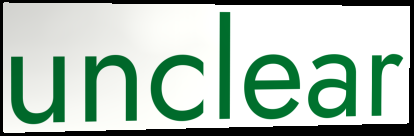
unclear